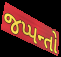
જપ્પન્તો